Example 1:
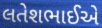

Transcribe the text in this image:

લતેશભાઈએ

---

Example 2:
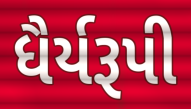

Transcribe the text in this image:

ધૈર્યરૂપી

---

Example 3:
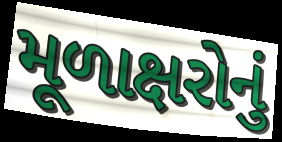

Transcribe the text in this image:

મૂળાક્ષરોનું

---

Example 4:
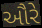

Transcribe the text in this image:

ઔરે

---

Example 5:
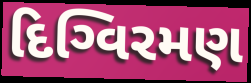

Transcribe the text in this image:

દિગ્વિરમણ